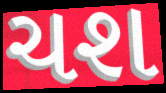
ચશ